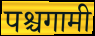
पश्चगामी